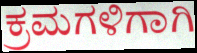
ಕ್ರಮಗಳಿಗಾಗಿ